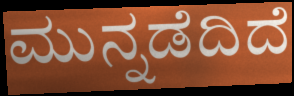
ಮುನ್ನಡೆದಿದೆ